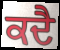
ਕਦੈ